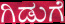
ಗಿಡುಗೆ